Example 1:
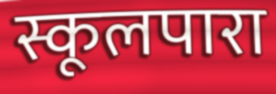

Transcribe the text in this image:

स्कूलपारा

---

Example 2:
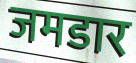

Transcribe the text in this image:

जमडार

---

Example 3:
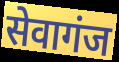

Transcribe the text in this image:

सेवागंज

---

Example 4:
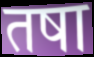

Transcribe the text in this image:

तषा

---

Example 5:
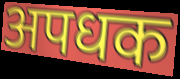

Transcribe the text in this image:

अपधक